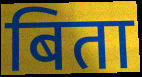
बिता